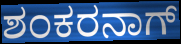
ಶಂಕರನಾಗ್